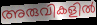
അരുവികളിൽ